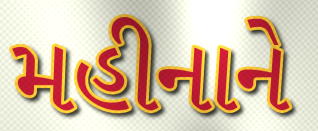
મહીનાને